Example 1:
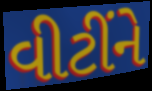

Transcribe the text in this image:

વીટીંને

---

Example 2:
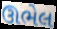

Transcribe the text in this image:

ઊભેલ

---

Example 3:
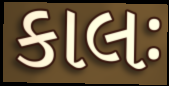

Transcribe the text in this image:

કાલઃ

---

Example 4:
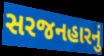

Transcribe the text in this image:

સરજનહારનું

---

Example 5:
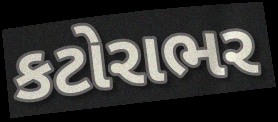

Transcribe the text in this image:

કટોરાભર